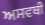
ਅਸਵਥੀ